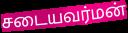
சடையவர்மன்